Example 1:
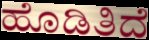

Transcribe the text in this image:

ಹೊಡಿತಿದೆ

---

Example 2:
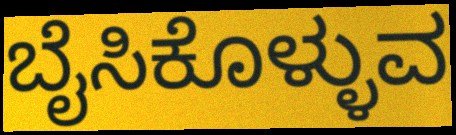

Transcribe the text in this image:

ಬೈಸಿಕೊಳ್ಳುವ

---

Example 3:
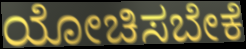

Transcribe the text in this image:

ಯೋಚಿಸಬೇಕೆ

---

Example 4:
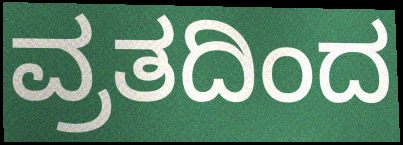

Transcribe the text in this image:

ವ್ರತದಿಂದ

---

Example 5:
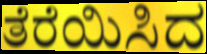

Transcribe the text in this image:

ತೆರೆಯಿಸಿದ